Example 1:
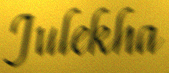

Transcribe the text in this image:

Julekha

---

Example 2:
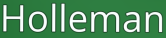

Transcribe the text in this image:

Holleman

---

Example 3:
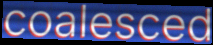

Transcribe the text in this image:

coalesced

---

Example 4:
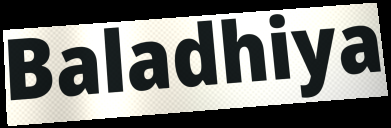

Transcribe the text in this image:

Baladhiya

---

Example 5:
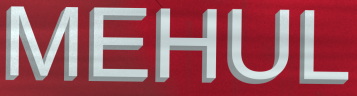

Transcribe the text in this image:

MEHUL